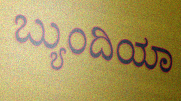
ಬ್ಯುಂದಿಯಾ